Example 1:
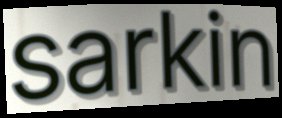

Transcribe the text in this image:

sarkin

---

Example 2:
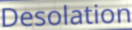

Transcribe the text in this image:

Desolation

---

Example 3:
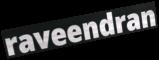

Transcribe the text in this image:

raveendran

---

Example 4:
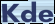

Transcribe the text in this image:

Kde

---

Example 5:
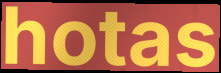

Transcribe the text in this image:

hotas